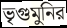
ভৃগুমুনির